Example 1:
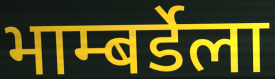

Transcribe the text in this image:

भाम्बर्डेला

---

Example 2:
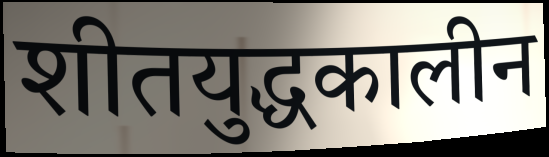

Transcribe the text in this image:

शीतयुद्धकालीन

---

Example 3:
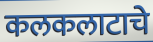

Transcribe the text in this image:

कलकलाटाचे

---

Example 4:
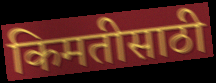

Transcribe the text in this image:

किमतीसाठी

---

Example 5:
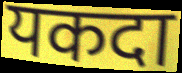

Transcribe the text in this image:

यकदा